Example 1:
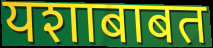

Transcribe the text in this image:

यशाबाबत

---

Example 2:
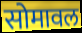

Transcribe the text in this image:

सोमावल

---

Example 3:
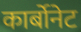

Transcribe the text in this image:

कार्बोनेट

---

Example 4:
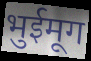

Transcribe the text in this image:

भुईमूग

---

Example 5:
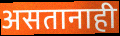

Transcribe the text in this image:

असतानाही